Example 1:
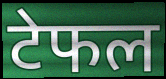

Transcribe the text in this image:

टेफल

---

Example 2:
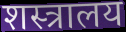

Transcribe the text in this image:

शस्त्रालय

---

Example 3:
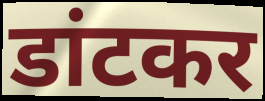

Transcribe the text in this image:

डांटकर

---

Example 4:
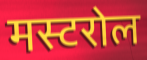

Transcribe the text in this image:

मस्टरोल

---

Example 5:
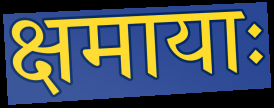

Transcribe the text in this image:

क्षमायाः